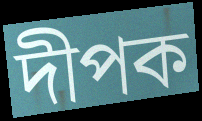
দীপক